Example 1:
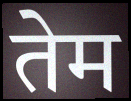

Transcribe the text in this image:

तेम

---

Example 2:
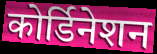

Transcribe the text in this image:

कोर्डिनेशन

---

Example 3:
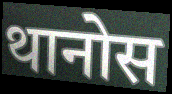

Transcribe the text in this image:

थानोस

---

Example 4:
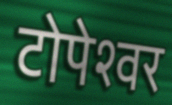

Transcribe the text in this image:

टोपेश्वर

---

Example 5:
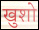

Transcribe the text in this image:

खुशो